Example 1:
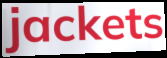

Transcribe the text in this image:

jackets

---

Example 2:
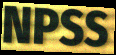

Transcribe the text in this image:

NPSS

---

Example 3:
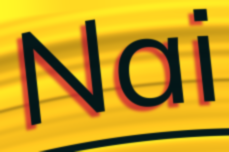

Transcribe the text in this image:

Nai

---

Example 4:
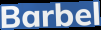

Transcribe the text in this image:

Barbel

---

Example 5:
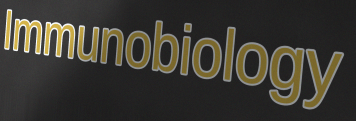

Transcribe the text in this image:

Immunobiology